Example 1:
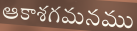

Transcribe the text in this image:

ఆకాశగమనము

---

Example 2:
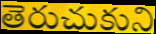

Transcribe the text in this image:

తెరుచుకుని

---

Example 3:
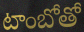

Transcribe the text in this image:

టాంబోతో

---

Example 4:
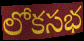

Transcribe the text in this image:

లోకసభ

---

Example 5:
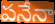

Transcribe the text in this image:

పనేనా